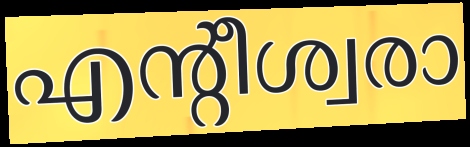
എന്റീശ്വരാ